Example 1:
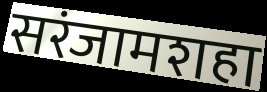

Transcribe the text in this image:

सरंजामशहा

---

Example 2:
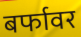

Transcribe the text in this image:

बर्फावर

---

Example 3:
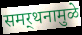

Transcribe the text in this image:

समर्थनामुळे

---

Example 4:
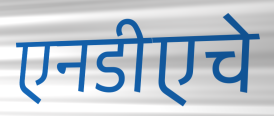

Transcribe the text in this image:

एनडीएचे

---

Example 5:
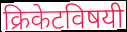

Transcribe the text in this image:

क्रिकेटविषयी